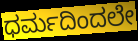
ಧರ್ಮದಿಂದಲೇ